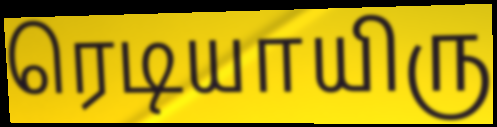
ரெடியாயிரு